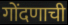
गोंदणाची